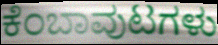
ಕೆಂಬಾವುಟಗಳು